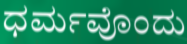
ಧರ್ಮವೊಂದು